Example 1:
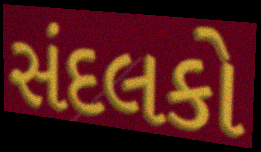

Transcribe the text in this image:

સંદલકો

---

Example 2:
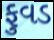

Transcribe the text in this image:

ફુવડ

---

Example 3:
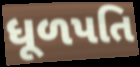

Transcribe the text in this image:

ધૂળપતિ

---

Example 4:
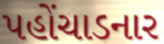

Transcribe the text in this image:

પહોંચાડનાર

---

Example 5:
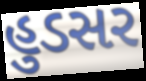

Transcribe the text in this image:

હુડસર